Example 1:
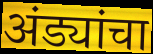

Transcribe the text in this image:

अंड्यांचा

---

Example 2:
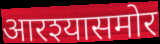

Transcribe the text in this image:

आरश्यासमोर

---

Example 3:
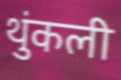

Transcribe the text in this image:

थुंकली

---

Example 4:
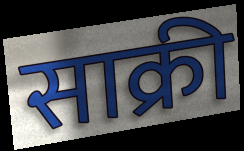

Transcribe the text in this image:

साक्री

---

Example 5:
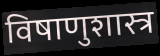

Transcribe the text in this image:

विषाणुशास्त्र